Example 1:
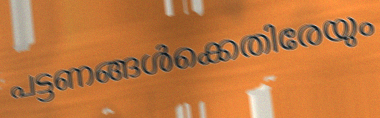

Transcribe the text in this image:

പട്ടണങ്ങൾക്കെതിരേയും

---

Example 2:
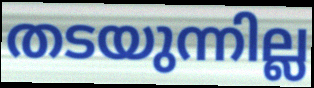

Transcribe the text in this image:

തടയുന്നില്ല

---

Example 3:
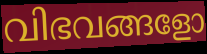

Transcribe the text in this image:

വിഭവങ്ങളോ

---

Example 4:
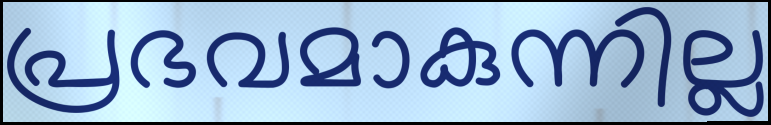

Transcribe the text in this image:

പ്രഭവമാകുന്നില്ല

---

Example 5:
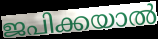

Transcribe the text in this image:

ജപിക്കയാൽ